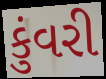
કુંવરી